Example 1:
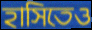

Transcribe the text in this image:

হাসিতেও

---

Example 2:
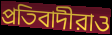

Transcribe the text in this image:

প্রতিবাদীরাও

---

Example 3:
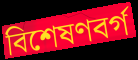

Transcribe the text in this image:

বিশেষণবর্গ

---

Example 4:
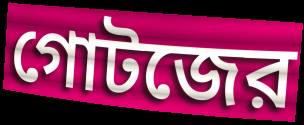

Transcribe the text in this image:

গোটজের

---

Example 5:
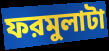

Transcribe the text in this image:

ফরমুলাটা